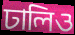
ঢালিও